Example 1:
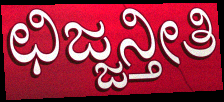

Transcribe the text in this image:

ಛಿಜ್ಜನ್ತೀತಿ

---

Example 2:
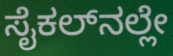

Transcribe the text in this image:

ಸೈಕಲ್‌ನಲ್ಲೇ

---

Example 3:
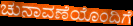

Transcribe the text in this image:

ಚುನಾವಣೆಯೊಂದಿಗೆ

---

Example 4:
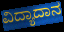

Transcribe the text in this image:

ವಿದ್ಯಾದಾನ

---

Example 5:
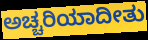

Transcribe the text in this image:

ಅಚ್ಚರಿಯಾದೀತು